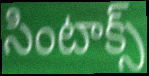
సింటాక్స్